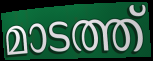
മാടത്ത്